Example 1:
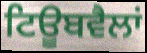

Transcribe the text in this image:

ਟਿਊਬਵੈਲਾਂ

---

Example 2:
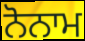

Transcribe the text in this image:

ਨੋਨਾਮ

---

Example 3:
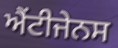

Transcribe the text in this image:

ਐਂਟੀਜੇਨਸ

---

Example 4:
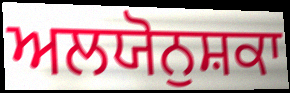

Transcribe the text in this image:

ਅਲਯੋਨੁਸ਼ਕਾ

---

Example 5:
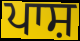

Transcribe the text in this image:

ਪਾਸ਼